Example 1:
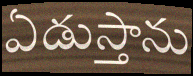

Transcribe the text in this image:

ఏడుస్తాను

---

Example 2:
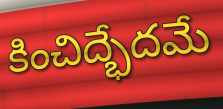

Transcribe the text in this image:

కించిద్భేదమే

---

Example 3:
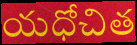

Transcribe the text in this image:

యధోచిత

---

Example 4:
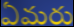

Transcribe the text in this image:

ఏమరు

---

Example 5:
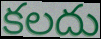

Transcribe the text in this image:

కలదు